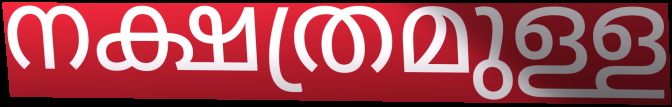
നക്ഷത്രമുള്ള